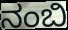
ನಂಬಿ